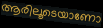
ആരിലൂടെയാണോ